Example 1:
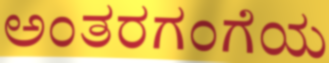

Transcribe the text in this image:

ಅಂತರಗಂಗೆಯ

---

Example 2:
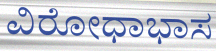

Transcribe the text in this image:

ವಿರೋಧಾಭಾಸ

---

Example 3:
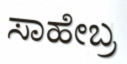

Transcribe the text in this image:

ಸಾಹೇಬ್ರ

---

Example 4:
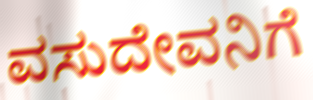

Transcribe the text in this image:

ವಸುದೇವನಿಗೆ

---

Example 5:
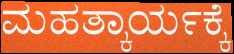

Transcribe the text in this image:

ಮಹತ್ಕಾರ್ಯಕ್ಕೆ